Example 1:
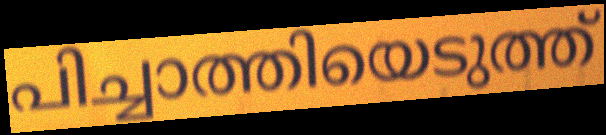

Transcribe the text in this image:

പിച്ചാത്തിയെടുത്ത്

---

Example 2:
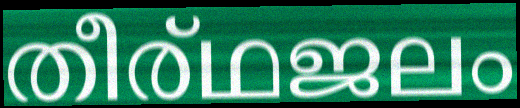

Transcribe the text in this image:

തീര്ഥജലം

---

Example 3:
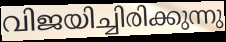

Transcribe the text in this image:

വിജയിച്ചിരിക്കുന്നു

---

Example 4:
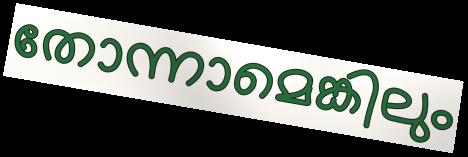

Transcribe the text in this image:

തോന്നാമെങ്കിലും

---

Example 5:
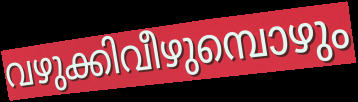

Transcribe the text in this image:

വഴുക്കിവീഴുമ്പൊഴും